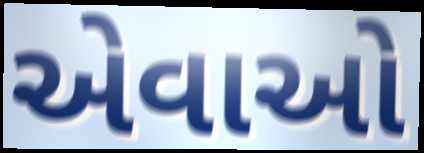
એવાઓ